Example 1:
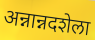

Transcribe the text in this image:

अन्नान्नदशेला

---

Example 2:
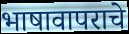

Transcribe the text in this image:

भाषावापराचे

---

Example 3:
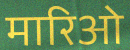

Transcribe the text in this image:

मारिओ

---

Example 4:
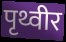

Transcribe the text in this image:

पृथ्वीर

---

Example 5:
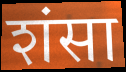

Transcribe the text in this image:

शंसा